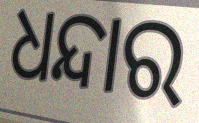
ଧନ୍ଦାର